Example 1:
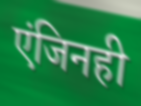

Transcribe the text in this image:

एंजिनही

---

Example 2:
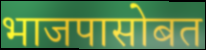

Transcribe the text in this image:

भाजपासोबत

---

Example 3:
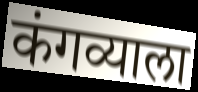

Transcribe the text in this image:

कंगव्याला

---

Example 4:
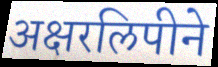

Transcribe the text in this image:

अक्षरलिपीने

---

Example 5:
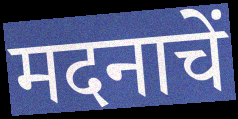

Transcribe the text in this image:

मदनाचें